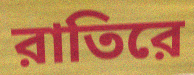
রাতিরে